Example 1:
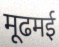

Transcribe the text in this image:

मूढमई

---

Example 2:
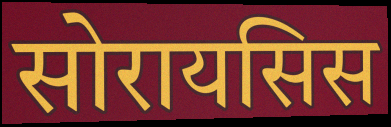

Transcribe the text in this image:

सोरायसिस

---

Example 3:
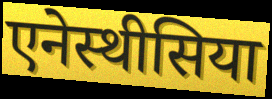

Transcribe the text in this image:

एनेस्थीसिया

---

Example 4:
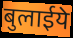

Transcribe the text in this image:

बुलाईये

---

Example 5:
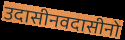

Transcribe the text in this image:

उदासीनवदासीनो